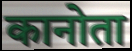
कानोता